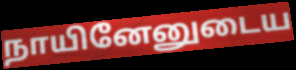
நாயினேனுடைய